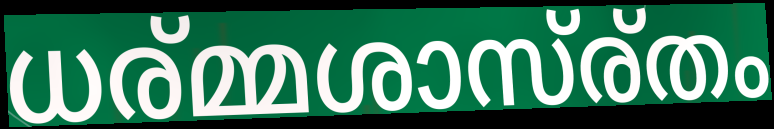
ധര്മ്മശാസ്ര്തം